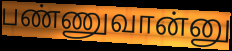
பண்ணுவான்னு